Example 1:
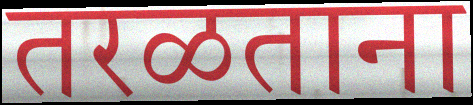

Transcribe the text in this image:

तरळताना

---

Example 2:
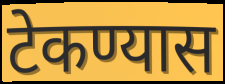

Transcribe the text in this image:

टेकण्यास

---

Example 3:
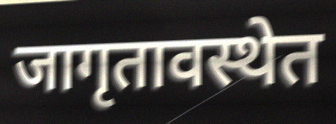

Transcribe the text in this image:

जागृतावस्थेत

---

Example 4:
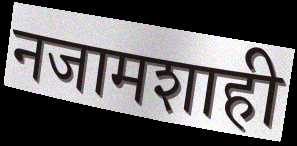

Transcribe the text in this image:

नजामशाही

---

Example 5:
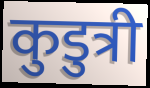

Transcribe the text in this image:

कुडुत्री